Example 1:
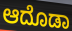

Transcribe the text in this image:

ಆದೊಡಾ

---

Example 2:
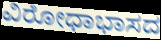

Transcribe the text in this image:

ವಿರೋಧಾಭಾಸದ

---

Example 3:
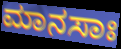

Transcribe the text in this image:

ಮಾನಸಾಃ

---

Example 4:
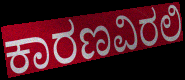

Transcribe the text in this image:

ಕಾರಣವಿರಲಿ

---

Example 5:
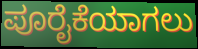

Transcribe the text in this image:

ಪೂರೈಕೆಯಾಗಲು